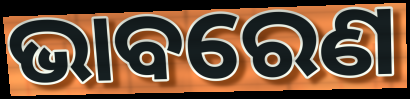
ଭାବରେଣ